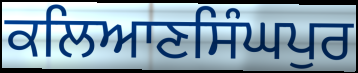
ਕਲਿਆਣਸਿੰਘਪੁਰ